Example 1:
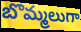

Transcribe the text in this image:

బొమ్మలుగా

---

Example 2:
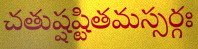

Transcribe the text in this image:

చతుష్షష్టితమస్సర్గః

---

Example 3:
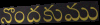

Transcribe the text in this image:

నొందకుము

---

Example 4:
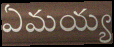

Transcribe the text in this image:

ఏమయ్య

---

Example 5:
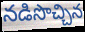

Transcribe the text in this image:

నడిసొచ్చిన